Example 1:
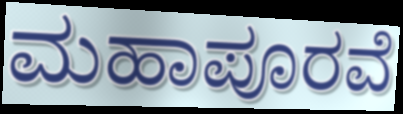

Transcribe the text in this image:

ಮಹಾಪೂರವೆ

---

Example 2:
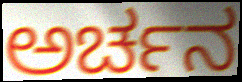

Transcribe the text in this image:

ಅರ್ಚನ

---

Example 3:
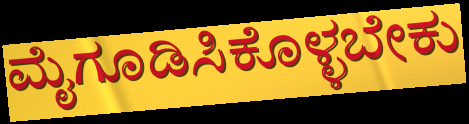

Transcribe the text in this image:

ಮೈಗೂಡಿಸಿಕೊಳ್ಳಬೇಕು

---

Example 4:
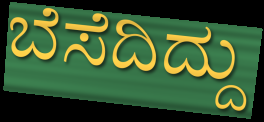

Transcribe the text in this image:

ಬೆಸೆದಿದ್ದು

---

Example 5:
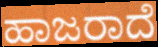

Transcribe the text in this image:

ಹಾಜರಾದೆ